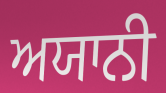
ਅਯਾਨੀ